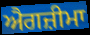
ਐਗਜ਼ੀਮਾ